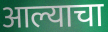
आल्‍याचा